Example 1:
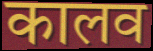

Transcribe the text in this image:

कालव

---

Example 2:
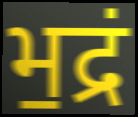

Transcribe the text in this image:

भ॒द्रं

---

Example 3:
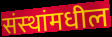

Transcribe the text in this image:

संस्थांमधील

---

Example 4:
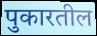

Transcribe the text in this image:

पुकारतील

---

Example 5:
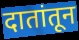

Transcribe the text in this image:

दातांतून